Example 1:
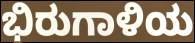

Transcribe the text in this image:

ಭಿರುಗಾಳಿಯ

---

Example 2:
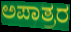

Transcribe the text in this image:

ಅಪಾತ್ರರ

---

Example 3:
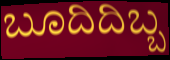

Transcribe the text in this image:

ಬೂದಿದಿಬ್ಬ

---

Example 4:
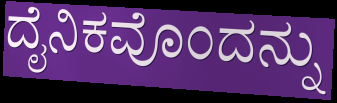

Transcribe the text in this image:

ದೈನಿಕವೊಂದನ್ನು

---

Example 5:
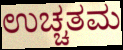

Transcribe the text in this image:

ಉಚ್ಚತಮ